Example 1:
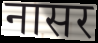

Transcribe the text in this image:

नासर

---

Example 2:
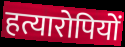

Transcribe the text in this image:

हत्यारोपियों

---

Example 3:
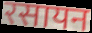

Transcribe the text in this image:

रसायन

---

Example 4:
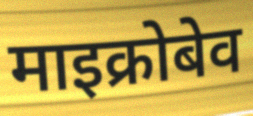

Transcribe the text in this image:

माइक्रोबेव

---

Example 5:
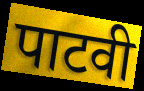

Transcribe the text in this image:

पाटवी